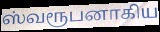
ஸ்வரூபனாகிய